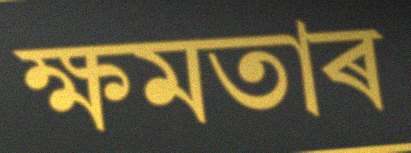
ক্ষমতাৰ